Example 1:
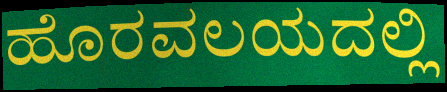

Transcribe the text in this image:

ಹೊರವಲಯದಲ್ಲಿ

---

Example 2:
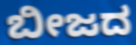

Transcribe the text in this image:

ಬೀಜದ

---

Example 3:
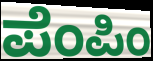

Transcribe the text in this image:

ಪೆಂಪಿಂ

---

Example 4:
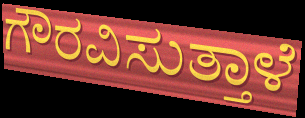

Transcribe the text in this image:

ಗೌರವಿಸುತ್ತಾಳೆ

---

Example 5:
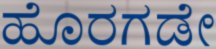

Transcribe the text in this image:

ಹೊರಗಡೇ